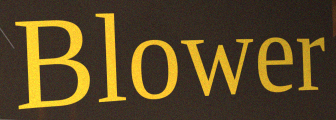
Blower